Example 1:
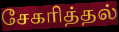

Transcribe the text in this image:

சேகரித்தல்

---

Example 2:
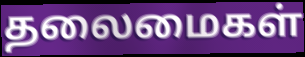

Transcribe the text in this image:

தலைமைகள்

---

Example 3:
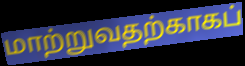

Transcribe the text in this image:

மாற்றுவதற்காகப்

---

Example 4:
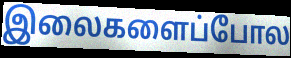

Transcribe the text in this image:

இலைகளைப்போல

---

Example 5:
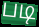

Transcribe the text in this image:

படி